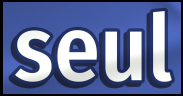
seul